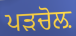
ਪੜਚੋਲ਼